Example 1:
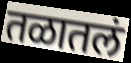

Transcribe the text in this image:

तळातलं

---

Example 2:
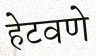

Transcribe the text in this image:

हेटवणे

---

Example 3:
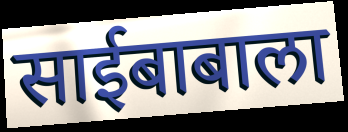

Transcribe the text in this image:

साईबाबाला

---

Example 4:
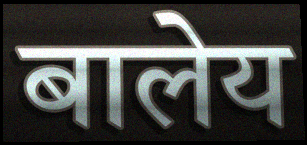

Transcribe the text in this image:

बालेय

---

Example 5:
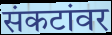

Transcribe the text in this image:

संकटांवर